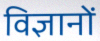
विज्ञानों